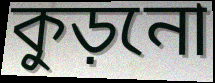
কুড়নো